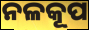
ନଳକୂପ